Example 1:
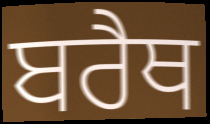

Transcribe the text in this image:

ਬਰੈਥ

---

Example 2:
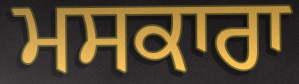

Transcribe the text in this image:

ਮਸਕਾਰਾ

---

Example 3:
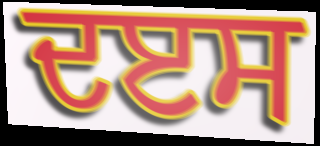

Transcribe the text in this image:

ਦੲਸ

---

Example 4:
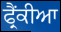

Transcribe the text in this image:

ਫ੍ਰੈਂਕੀਆ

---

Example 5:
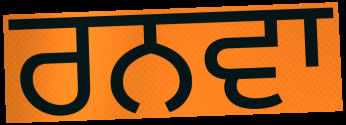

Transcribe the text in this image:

ਰਨਵਾ